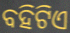
ବହିଟିଏ